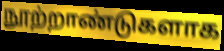
நூற்றாண்டுகளாக